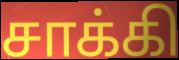
சாக்கி